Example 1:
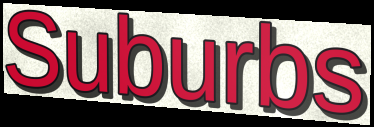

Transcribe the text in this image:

Suburbs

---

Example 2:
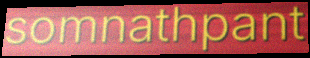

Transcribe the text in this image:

somnathpant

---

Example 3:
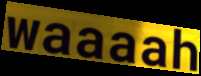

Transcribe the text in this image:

waaaah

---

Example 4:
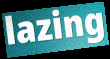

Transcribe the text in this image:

lazing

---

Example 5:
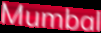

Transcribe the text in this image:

Mumbal